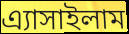
এ্যাসাইলাম